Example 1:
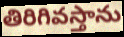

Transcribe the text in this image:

తిరిగివస్తాను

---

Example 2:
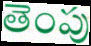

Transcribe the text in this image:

తెంపు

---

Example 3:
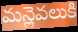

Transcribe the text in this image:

మన్లెవలుకి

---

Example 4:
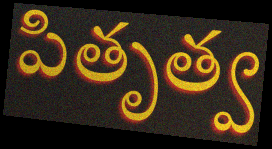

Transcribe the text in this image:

పితృత్వ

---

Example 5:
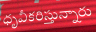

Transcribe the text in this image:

ధృవీకరిస్తున్నారు